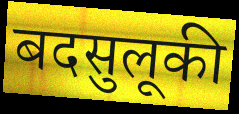
बदसुलूकी